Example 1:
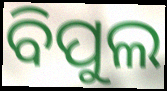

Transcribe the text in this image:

ବିପୁଲ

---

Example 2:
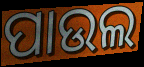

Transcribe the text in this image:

ପାଉଲ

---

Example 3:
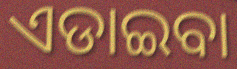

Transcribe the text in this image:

ଏଡାଇବା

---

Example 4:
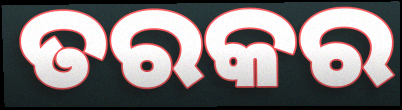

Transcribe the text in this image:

ତରକର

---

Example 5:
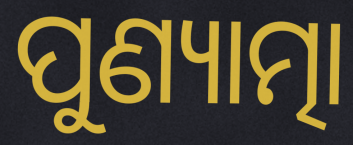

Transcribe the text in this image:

ପୁଣ୍ୟାତ୍ମା